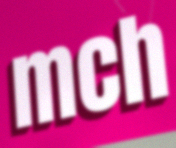
mch